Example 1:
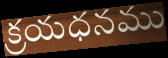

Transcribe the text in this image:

క్రయధనము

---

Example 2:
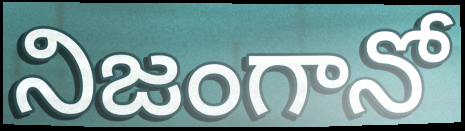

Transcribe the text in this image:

నిజంగానో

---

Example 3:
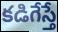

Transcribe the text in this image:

కడిగేస్తే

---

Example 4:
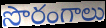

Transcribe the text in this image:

సొరంగాలు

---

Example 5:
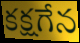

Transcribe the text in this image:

కక్షగేన